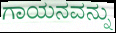
ಗಾಯನವನ್ನು